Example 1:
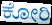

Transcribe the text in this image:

ಕೋರಿ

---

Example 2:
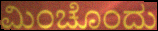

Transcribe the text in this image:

ಮಿಂಚೊಂದು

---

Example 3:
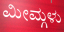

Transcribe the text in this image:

ಮೀಮ್ಗಳು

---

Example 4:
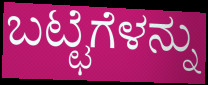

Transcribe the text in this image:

ಬಟ್ಟೆಗೆಳನ್ನು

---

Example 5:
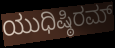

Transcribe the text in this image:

ಯುಧಿಷ್ಠಿರಮ್